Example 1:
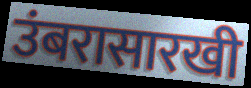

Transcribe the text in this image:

उंबरासारखी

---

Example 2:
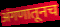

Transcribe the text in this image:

अंगणातूनच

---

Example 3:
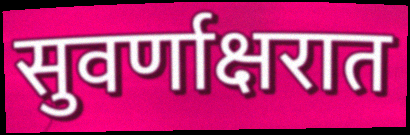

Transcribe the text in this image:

सुवर्णाक्षरात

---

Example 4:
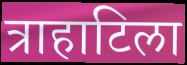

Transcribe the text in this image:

त्राहाटिला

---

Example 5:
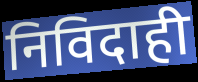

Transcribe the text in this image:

निविदाही